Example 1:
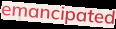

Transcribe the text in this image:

emancipated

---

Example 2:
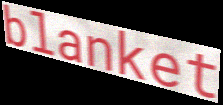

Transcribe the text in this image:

blanket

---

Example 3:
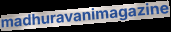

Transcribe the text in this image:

madhuravanimagazine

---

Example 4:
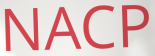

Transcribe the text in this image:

NACP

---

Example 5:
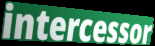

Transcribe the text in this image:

intercessor